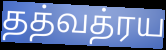
தத்வத்ரய